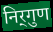
निर्गुण